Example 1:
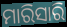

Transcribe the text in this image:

ମାରିସାରି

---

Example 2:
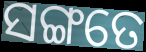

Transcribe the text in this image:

ସଙ୍ଗତେ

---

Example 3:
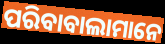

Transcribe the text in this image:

ପରିବାବାଲାମାନେ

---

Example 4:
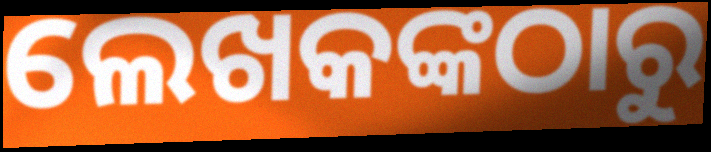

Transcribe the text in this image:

ଲେଖକଙ୍କଠାରୁ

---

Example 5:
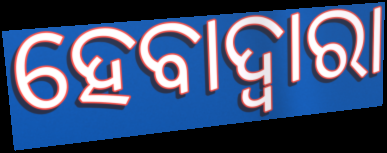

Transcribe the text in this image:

ହେବାଦ୍ୱାରା